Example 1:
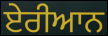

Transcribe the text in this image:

ਏਰੀਆਨ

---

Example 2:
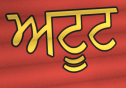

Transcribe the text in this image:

ਅਟੂਟ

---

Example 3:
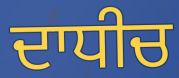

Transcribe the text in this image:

ਦਾਧੀਚ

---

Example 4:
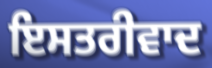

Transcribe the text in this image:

ਇਸਤਰੀਵਾਦ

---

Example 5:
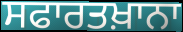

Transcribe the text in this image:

ਸਫਾਰਤਖ਼ਾਨਾ